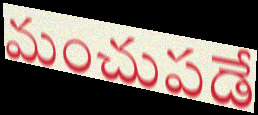
మంచుపడే